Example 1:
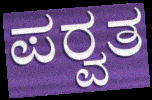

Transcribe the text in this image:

ಪರ್‍ವತ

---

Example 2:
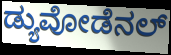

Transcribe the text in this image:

ಡ್ಯುವೋಡೆನಲ್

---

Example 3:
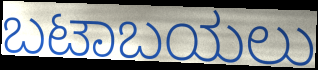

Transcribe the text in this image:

ಬಟಾಬಯಲು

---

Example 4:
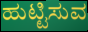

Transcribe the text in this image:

ಹುಟ್ಟಿಸುವ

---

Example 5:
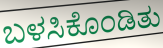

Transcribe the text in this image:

ಬಳಸಿಕೊಂಡಿತು